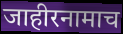
जाहीरनामाच